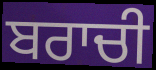
ਬਰਾਚੀ